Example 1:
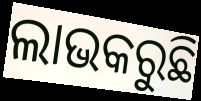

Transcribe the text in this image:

ଲାଭକରୁଛି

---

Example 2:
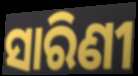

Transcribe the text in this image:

ସାରିଣୀ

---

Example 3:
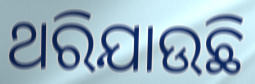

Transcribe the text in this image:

ଥରିଯାଉଛି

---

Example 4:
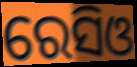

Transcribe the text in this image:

ରେସିଓ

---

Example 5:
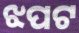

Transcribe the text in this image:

ଝପଟ